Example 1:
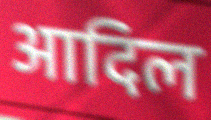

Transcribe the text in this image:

आदिल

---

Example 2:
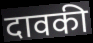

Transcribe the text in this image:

दावकी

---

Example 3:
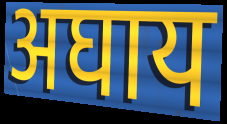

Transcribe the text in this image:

अघाय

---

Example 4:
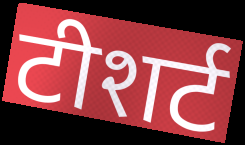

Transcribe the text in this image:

टीशर्ट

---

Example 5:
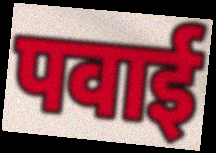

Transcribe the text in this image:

पवाई